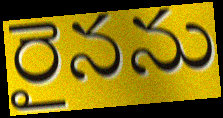
రైనను